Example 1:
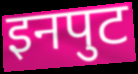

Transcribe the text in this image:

इनपुट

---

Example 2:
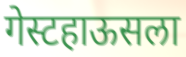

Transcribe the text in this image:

गेस्टहाऊसला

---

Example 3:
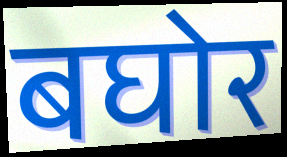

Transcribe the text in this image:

बघोर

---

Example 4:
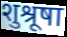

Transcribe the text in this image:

शुश्रूषा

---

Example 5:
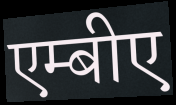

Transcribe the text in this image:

एम्बीए